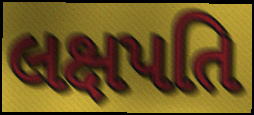
લક્ષપતિ